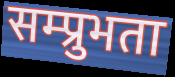
सम्प्रुभता